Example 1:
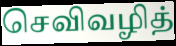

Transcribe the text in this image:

செவிவழித்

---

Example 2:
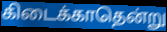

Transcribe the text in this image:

கிடைக்காதென்று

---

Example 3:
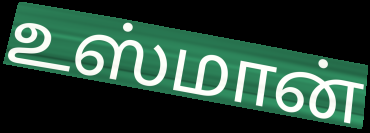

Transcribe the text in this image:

உஸ்மான்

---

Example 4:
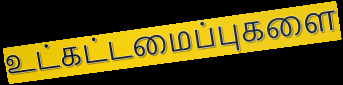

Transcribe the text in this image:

உட்கட்டமைப்புகளை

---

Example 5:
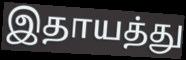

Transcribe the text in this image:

இதாயத்து